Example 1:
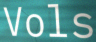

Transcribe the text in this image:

Vols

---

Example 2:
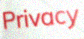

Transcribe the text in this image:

Privacy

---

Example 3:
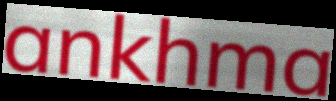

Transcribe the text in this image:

ankhma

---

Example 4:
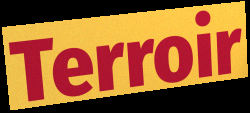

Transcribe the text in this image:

Terroir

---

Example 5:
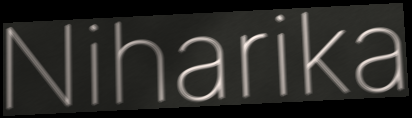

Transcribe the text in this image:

Niharika